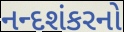
નન્દશંકરનો